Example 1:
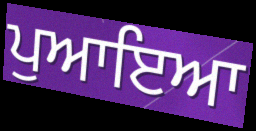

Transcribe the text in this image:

ਪੁਆਇਆ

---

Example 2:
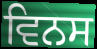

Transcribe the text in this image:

ਵਿਨਸ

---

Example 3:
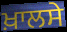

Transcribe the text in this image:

ਖ਼ਾਲਸੇ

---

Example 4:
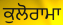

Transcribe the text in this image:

ਕੁਲੋਰਾਮਾ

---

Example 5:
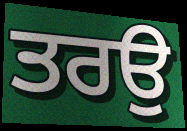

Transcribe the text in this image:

ਤਰਉ